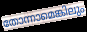
തോന്നാമെങ്കിലും